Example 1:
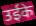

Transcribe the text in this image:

उईके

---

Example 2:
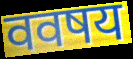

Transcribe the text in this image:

ववषय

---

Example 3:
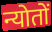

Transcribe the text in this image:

न्योतों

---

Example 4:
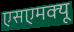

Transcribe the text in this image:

एसएमक्यू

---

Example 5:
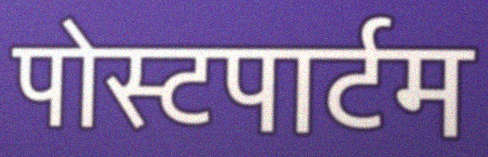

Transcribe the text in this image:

पोस्टपार्टम